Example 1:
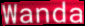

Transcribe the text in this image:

Wanda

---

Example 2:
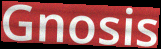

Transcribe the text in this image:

Gnosis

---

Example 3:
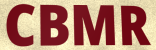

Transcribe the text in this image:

CBMR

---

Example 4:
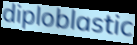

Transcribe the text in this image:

diploblastic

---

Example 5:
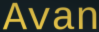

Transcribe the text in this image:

Avan